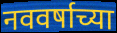
नववर्षाच्या